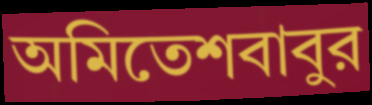
অমিতেশবাবুর